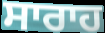
ਸਾਰਾਹ